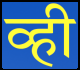
व्‍ही